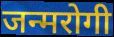
जन्मरोगी